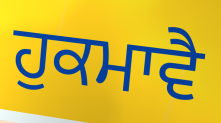
ਹੁਕਮਾਵੈ